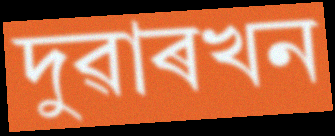
দুৱাৰখন